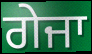
ਗੇਜਾ